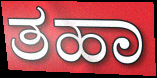
ತಹಾ